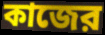
কাজের